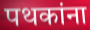
पथकांना